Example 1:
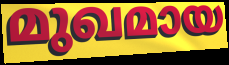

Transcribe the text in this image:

മുഖമായ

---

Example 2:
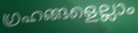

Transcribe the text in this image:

ഗ്രഹങ്ങളെല്ലാം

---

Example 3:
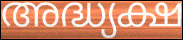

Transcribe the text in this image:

അദ്ധ്യക്ഷ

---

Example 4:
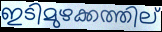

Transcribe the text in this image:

ഇടിമുഴക്കത്തില്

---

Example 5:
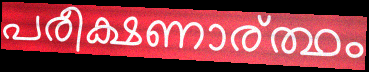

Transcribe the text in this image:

പരീക്ഷണാര്ത്ഥം